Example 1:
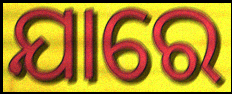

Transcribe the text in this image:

ଯାରେ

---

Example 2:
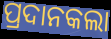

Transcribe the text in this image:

ପ୍ରଦାନକଲା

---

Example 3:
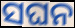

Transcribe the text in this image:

ସଘନ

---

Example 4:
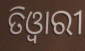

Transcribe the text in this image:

ତିଓ୍ଵାରୀ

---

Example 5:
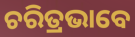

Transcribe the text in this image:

ଚରିତ୍ରଭାବେ